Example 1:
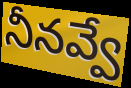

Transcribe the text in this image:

నీనవ్వే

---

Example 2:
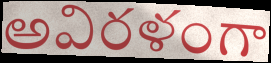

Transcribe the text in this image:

అవిరళంగా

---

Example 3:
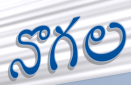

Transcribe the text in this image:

నొగల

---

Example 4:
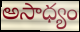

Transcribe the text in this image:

అసాధ్యం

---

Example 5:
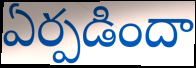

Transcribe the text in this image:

ఏర్పడిందా